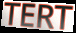
TERT